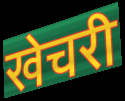
खेचरी